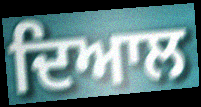
ਦਿਆਲ